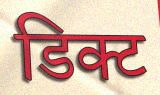
डिक्ट